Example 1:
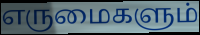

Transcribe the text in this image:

எருமைகளும்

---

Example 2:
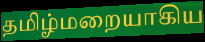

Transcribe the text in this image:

தமிழ்மறையாகிய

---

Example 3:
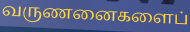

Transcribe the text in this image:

வருணனைகளைப்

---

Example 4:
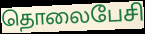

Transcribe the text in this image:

தொலைபேசி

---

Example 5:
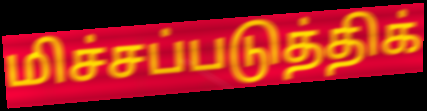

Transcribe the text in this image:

மிச்சப்படுத்திக்